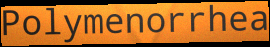
Polymenorrhea